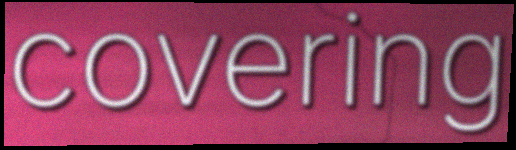
covering